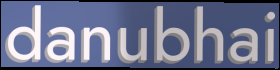
danubhai